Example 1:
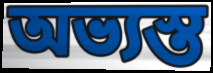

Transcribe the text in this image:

অভ্যস্ত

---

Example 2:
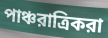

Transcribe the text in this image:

পাঞ্চরাত্রিকরা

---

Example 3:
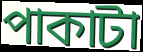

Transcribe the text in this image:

পাকাটা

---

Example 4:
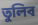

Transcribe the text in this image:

তুলিব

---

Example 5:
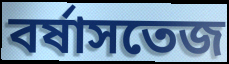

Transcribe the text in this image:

বর্ষাসতেজ